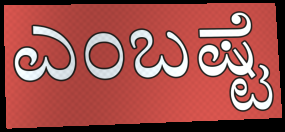
ಎಂಬಷ್ಟೆ